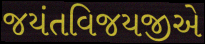
જયંતવિજયજીએ